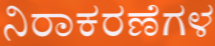
ನಿರಾಕರಣೆಗಳ